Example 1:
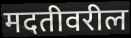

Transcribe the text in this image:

मदतीवरील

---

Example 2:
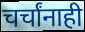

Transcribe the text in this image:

चर्चांनाही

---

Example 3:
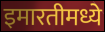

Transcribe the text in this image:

इमारतीमध्ये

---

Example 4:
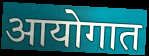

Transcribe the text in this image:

आयोगात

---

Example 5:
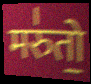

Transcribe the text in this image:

मरु॑तो॒